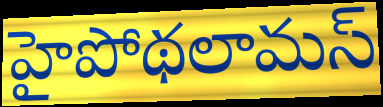
హైపోథలామస్